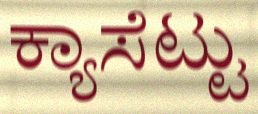
ಕ್ಯಾಸೆಟ್ಟು